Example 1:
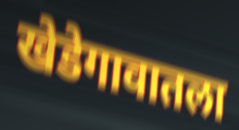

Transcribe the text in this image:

खेडेगावातला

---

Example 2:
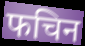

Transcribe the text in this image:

फचिन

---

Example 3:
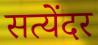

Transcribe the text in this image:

सत्येंदर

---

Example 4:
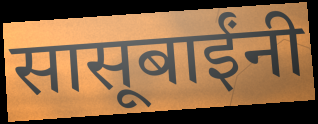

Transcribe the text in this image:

सासूबाईंनी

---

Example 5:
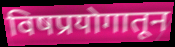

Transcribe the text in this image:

विषप्रयोगातून